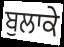
ਬੁਲਾਕੇ